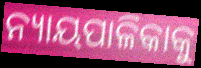
ନ୍ୟାୟପାଳିକାକୁ